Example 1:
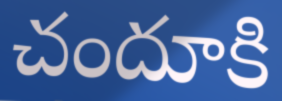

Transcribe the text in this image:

చందూకి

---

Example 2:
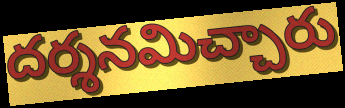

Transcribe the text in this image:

దర్శనమిచ్చారు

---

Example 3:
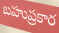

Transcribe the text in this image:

బహుప్రకార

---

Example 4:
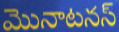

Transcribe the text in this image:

మొనాటనస్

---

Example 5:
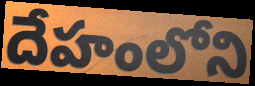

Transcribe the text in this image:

దేహంలోని